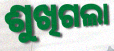
ଶୁଖିଗଲା